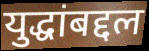
युद्धांबद्दल